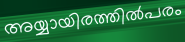
അയ്യായിരത്തിൽപരം